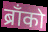
ब्राँको